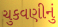
ચુકવણીનું